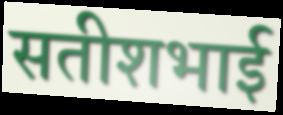
सतीशभाई